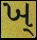
ખ્